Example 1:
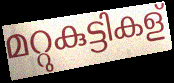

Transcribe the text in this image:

മറ്റുകുട്ടികള്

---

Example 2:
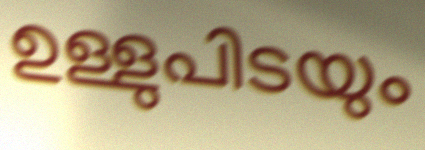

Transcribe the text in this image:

ഉള്ളുപിടയും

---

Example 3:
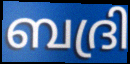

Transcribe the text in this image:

ബദ്രി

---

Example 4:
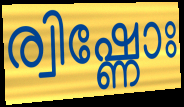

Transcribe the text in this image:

ര്വിഷ്ണോഃ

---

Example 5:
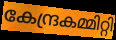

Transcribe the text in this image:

കേന്ദ്രകമ്മിറ്റി